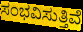
ಸಂಭವಿಸುತ್ತಿವೆ